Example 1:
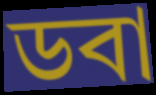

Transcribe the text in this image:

ডবা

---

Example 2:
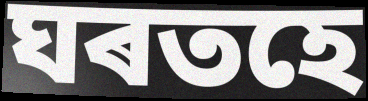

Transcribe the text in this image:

ঘৰতহে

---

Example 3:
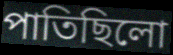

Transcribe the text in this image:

পাতিছিলো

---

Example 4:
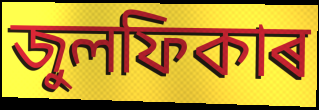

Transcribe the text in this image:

জুলফিকাৰ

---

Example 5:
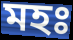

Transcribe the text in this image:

মহঃ